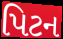
પિટન